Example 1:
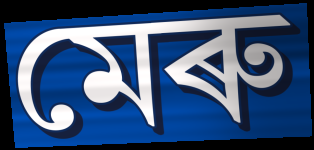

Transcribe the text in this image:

মেৰু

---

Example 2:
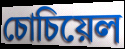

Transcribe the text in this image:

চোচিয়েল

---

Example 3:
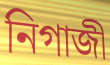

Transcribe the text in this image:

নিগাজী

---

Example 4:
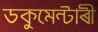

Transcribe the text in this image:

ডকুমেন্টাৰী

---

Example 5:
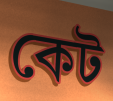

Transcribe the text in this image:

কেট